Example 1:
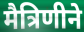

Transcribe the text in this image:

मैत्रिणीने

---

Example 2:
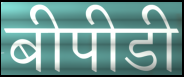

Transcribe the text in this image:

बीपीडी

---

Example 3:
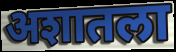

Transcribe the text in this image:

अशातला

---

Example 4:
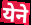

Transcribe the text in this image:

येने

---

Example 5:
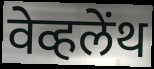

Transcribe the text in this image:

वेव्हलेंथ